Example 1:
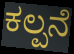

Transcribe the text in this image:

ಕಲ್ಪನೆ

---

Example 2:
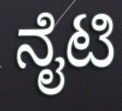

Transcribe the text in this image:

ನೈಟಿ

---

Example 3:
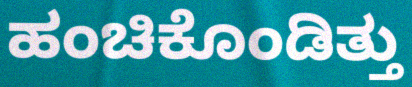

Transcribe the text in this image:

ಹಂಚಿಕೊಂಡಿತ್ತು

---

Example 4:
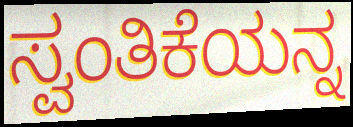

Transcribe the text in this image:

ಸ್ವಂತಿಕೆಯನ್ನ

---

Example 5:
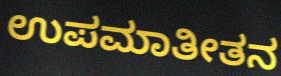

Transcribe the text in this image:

ಉಪಮಾತೀತನ